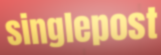
singlepost